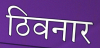
ठिवनार